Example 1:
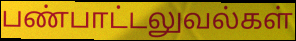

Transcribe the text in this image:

பண்பாட்டலுவல்கள்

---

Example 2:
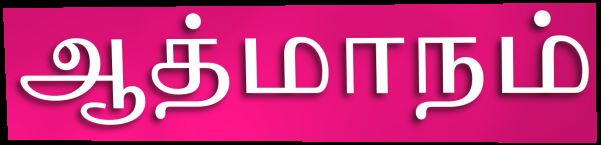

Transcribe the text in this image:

ஆத்மாநம்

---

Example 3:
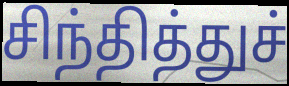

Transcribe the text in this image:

சிந்தித்துச்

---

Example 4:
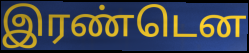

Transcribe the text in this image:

இரண்டென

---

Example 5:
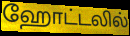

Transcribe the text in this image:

ஹோட்டலில்